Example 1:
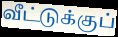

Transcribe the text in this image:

வீட்டுக்குப்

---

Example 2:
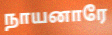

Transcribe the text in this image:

நாயனாரே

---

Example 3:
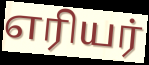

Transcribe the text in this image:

எரியர்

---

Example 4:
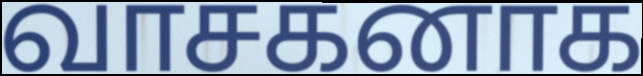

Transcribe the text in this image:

வாசகனாக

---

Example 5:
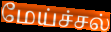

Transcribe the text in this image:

மேய்ச்சல்